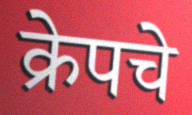
क्रेपचे